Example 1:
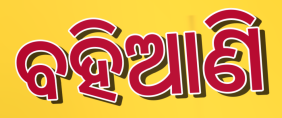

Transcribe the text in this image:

ବହିଆଣି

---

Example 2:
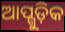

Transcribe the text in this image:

ଆପ୍ଗୁଡ଼ିକ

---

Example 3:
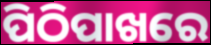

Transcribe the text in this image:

ପିଠିପାଖରେ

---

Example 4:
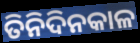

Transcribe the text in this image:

ତିନିଦିନକାଳ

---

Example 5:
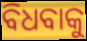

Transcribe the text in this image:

ବିଧବାକୁ